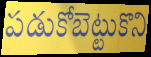
పడుకోబెట్టుకొని